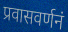
प्रवासवर्णनं